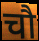
चौ